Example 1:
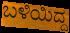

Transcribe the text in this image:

ಬಳಿಯಿದ್ದ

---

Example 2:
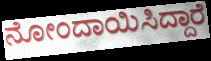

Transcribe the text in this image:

ನೋಂದಾಯಿಸಿದ್ದಾರೆ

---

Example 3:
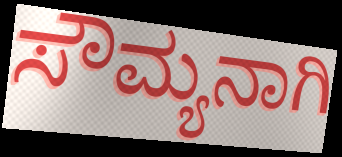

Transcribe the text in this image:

ಸೌಮ್ಯನಾಗಿ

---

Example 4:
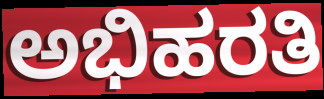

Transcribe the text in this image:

ಅಭಿಹರತಿ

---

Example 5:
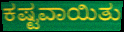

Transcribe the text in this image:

ಕಷ್ಟವಾಯಿತು